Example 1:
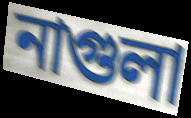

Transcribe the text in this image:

নাগুলা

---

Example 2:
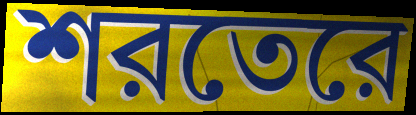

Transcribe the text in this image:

শরতেরে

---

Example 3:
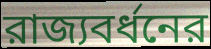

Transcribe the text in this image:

রাজ্যবর্ধনের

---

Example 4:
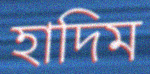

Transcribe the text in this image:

হাদিম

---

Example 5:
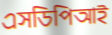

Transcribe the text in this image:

এসডিপিআই